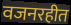
वजनरहीत